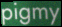
pigmy